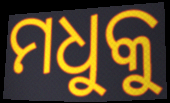
ମଧୁକୁ